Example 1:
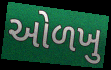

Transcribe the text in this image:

ઓળખુ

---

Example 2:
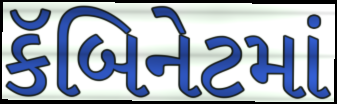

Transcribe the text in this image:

કૅબિનેટમાં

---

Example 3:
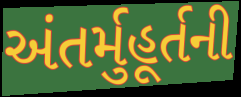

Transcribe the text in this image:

અંતર્મુહૂર્તની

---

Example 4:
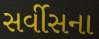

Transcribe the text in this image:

સર્વીસના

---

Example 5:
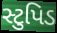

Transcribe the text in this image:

સ્ટુપિડ